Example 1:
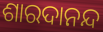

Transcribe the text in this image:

ଶାରଦାନନ୍ଦ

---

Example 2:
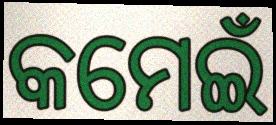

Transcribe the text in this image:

କମେଇଁ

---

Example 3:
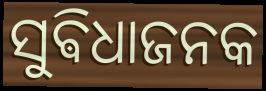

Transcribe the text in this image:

ସୁଵିଧାଜନକ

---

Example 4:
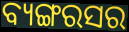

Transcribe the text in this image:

ବ୍ୟଙ୍ଗରସର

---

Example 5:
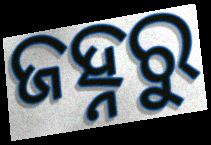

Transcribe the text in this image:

ଜହ୍ନରୁ